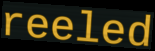
reeled